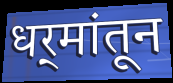
धर्मांतून